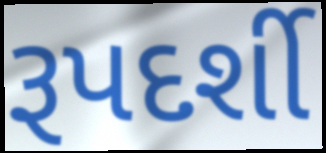
રૂપદર્શી